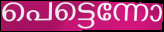
പെട്ടെന്നോ